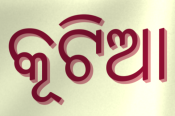
କୂଟିଆ